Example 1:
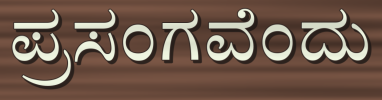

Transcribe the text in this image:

ಪ್ರಸಂಗವೆಂದು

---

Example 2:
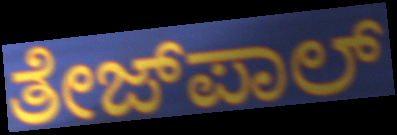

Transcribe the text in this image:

ತೇಜ್‌ಪಾಲ್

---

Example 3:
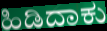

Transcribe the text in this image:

ಹಿಡಿದಾಕು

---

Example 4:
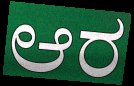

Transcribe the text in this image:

ಆರ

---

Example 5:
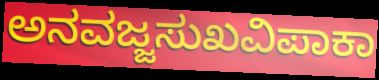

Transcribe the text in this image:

ಅನವಜ್ಜಸುಖವಿಪಾಕಾ